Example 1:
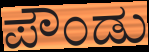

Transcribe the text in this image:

ಪೌಂಡು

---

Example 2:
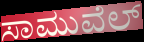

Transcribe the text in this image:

ಸಾಮುವೆಲ್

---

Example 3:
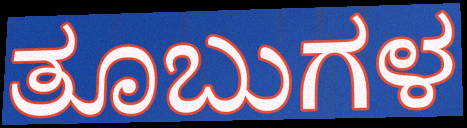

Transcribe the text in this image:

ತೂಬುಗಳ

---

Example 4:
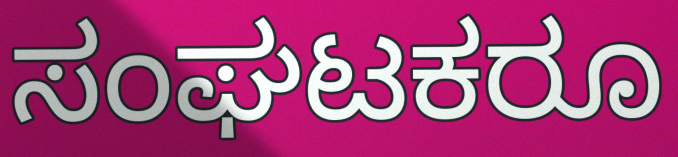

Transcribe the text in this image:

ಸಂಘಟಕರೂ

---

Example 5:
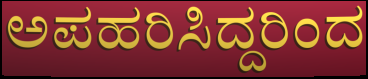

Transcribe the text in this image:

ಅಪಹರಿಸಿದ್ದರಿಂದ